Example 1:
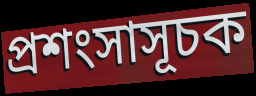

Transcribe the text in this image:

প্রশংসাসূচক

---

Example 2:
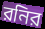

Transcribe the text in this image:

রনির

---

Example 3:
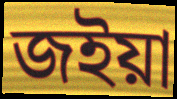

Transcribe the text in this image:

জইয়া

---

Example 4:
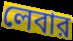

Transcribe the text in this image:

লেবার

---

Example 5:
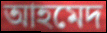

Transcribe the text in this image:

আহমেদ